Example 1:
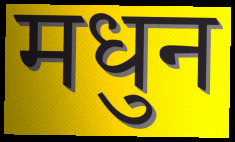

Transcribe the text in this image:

मधुन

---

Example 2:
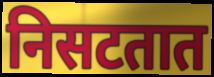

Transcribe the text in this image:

निसटतात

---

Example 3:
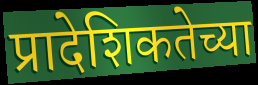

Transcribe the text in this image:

प्रादेशिकतेच्या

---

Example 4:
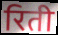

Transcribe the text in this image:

रिती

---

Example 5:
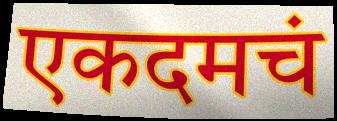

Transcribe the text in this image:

एकदमचं